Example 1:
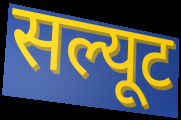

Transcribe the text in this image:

सल्यूट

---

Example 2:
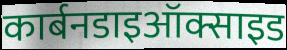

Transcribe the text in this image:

कार्बनडाइऑक्साइड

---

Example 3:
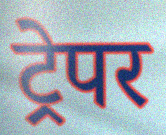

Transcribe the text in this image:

ट्रेपर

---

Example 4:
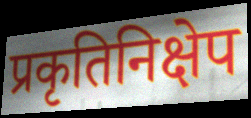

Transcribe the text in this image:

प्रकृतिनिक्षेप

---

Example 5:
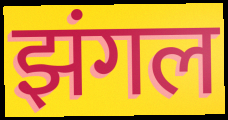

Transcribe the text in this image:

झंगल